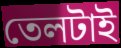
তেলটাই